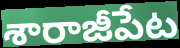
శారాజీపేట